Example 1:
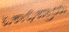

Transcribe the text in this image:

ಏಕಾಭಿಪ್ರಾಯ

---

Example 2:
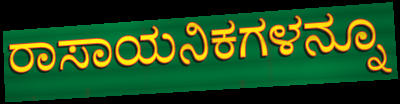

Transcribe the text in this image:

ರಾಸಾಯನಿಕಗಳನ್ನೂ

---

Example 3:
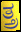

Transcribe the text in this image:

ತ್ತ್ರ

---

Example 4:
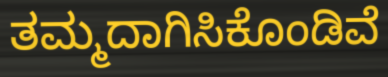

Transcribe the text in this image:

ತಮ್ಮದಾಗಿಸಿಕೊಂಡಿವೆ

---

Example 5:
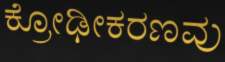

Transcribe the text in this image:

ಕ್ರೋಢೀಕರಣವು